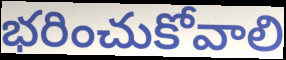
భరించుకోవాలి